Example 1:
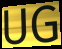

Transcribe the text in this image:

UG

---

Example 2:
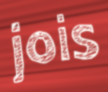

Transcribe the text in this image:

jois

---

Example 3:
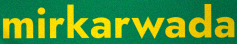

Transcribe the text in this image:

mirkarwada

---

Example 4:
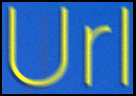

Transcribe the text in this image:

Url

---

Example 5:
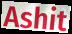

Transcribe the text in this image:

Ashit